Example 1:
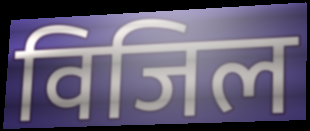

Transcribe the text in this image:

विजिल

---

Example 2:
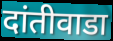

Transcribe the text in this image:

दांतीवाडा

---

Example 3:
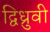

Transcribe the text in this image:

द्विध्रुवी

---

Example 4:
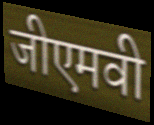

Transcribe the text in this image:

जीएमवी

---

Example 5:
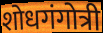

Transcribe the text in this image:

शोधगंगोत्री